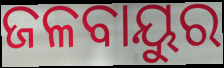
ଜଳବାୟୁର